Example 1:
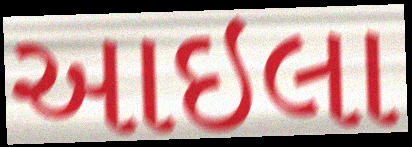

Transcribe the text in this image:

આઇલા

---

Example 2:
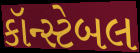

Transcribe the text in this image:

કૉન્સ્ટેબલ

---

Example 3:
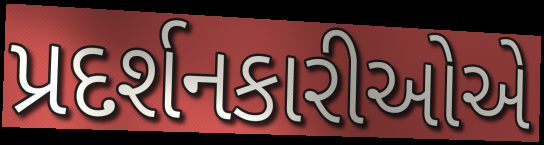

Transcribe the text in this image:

પ્રદર્શનકારીઓએ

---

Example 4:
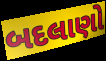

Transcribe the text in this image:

બદલાણો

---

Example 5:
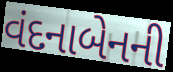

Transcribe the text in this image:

વંદનાબેનની